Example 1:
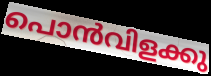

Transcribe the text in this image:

പൊൻവിളക്കു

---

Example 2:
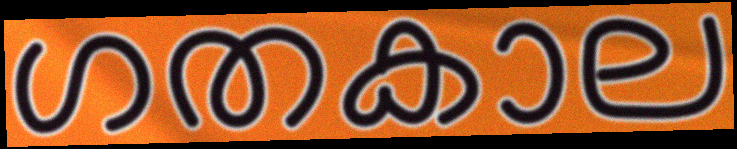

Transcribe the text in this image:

ഗതകാല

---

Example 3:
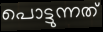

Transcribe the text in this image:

പൊട്ടുന്നത്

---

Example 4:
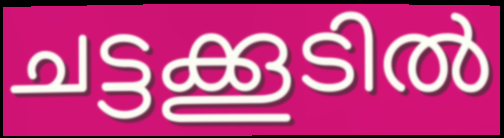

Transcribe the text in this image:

ചട്ടക്കൂടിൽ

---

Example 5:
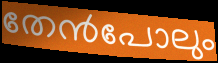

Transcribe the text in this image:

തേൻപോലും